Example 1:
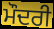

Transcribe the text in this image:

ਮੌਦਰੀ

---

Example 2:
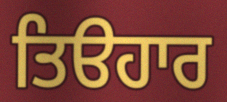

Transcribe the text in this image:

ਤਿੳਹਾਰ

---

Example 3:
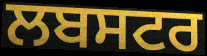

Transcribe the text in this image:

ਲਬਸਟਰ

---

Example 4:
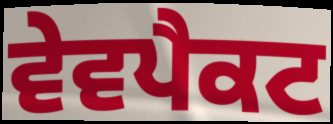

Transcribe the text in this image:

ਵੇਵਪੈਕਟ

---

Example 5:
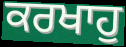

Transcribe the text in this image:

ਕਰਖਾਹੁ